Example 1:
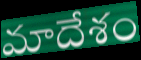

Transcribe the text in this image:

మాదేశం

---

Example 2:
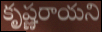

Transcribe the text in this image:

కృష్ణరాయని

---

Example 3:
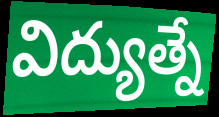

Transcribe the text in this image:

విద్యుత్నే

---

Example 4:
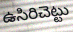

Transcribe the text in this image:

ఉసిరిచెట్టు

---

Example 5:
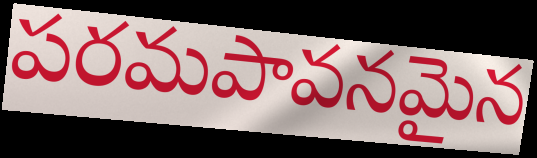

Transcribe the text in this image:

పరమపావనమైన